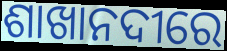
ଶାଖାନଦୀରେ